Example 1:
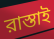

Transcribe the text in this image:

রাস্তাই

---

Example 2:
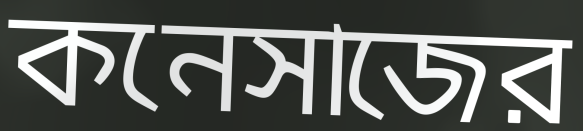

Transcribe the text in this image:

কনেসাজের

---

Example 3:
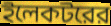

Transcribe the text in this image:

ইলেকটরের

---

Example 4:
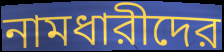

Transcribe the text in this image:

নামধারীদের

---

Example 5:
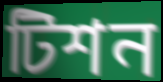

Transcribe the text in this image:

টিশন